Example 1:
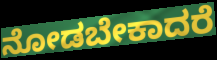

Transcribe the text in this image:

ನೋಡಬೇಕಾದರೆ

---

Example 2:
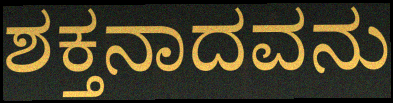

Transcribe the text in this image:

ಶಕ್ತನಾದವನು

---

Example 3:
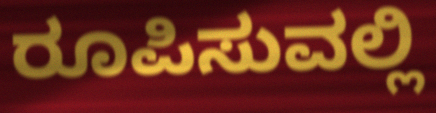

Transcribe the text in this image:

ರೂಪಿಸುವಲ್ಲಿ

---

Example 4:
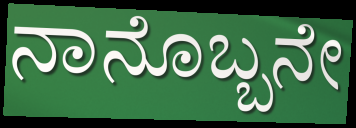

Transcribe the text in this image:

ನಾನೊಬ್ಬನೇ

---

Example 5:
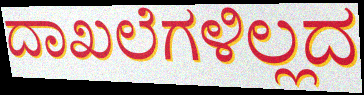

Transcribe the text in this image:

ದಾಖಲೆಗಳಿಲ್ಲದ